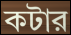
কটার